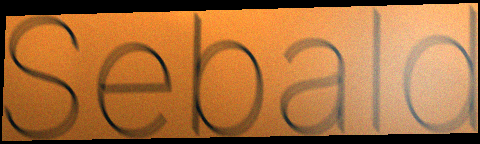
Sebald